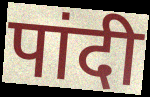
पांदी